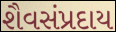
શૈવસંપ્રદાય